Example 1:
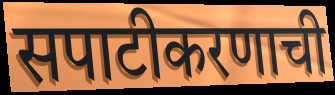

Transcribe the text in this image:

सपाटीकरणाची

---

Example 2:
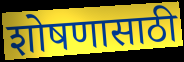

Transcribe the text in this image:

शोषणासाठी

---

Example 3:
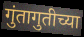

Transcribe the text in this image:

गुंतागुतीच्या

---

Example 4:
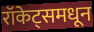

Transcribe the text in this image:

रॉकेट्समधून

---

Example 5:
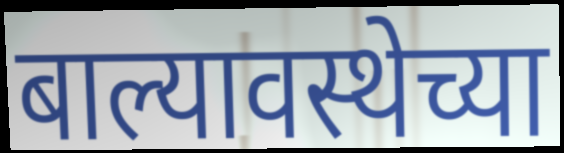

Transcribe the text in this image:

बाल्यावस्थेच्या